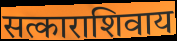
सत्काराशिवाय